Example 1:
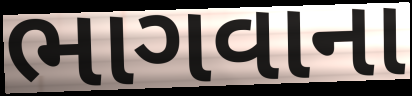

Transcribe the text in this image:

ભાગવાના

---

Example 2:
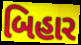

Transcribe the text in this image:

બિહાર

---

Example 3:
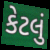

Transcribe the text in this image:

કેટલું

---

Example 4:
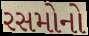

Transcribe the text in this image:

રસમોનો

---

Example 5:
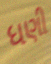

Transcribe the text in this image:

ધણી